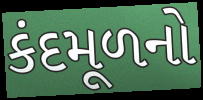
કંદમૂળનો